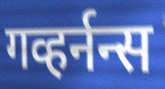
गव्हर्नन्स